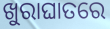
ଖୁରାଘାତରେ